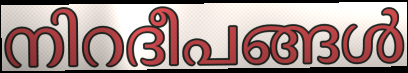
നിറദീപങ്ങൾ